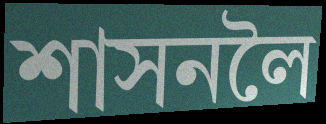
শাসনলৈ